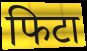
फिटा